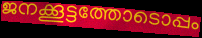
ജനക്കൂട്ടത്തോടൊപ്പം